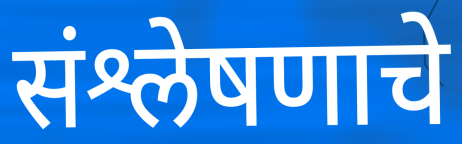
संश्लेषणाचे